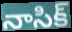
నాసిక్